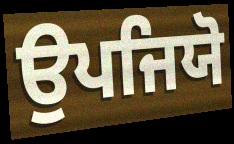
ਉਪਜਿਯੋ